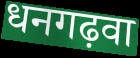
धनगढ़वा